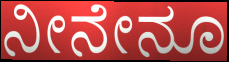
ನೀನೇನೂ